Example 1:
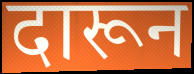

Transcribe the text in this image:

दारून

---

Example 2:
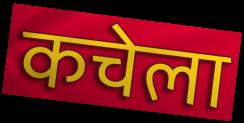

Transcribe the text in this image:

कचेला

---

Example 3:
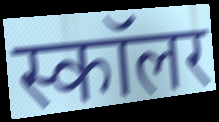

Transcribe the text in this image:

स्कॉलर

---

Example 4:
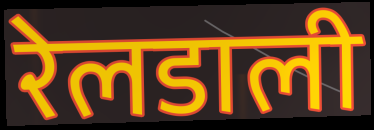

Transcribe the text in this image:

रेलडाली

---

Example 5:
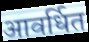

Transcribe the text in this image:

आवर्धित